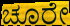
ಚೂರೇ